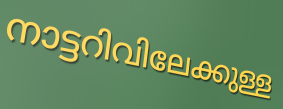
നാട്ടറിവിലേക്കുള്ള